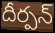
దీర్పన్